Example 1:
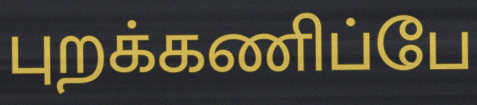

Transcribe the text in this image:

புறக்கணிப்பே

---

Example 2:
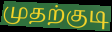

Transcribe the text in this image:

முதற்குடி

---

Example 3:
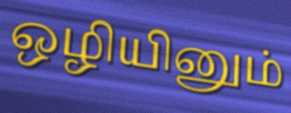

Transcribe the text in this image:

ஒழியினும்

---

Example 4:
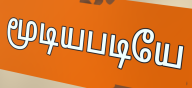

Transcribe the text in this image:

மூடியபடியே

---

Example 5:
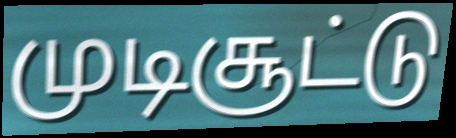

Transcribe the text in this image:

முடிசூட்டு